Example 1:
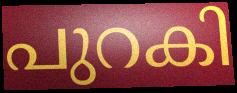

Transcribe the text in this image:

പുറകി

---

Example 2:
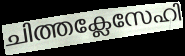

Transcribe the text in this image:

ചിത്തക്ലേസേഹി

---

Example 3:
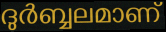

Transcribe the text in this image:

ദുർബ്ബലമാണ്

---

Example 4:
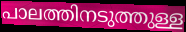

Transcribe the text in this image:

പാലത്തിനടുത്തുള്ള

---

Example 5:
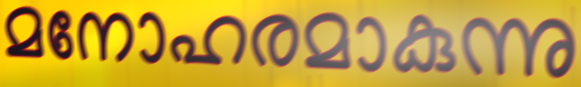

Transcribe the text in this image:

മനോഹരമാകുന്നു